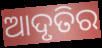
ଆଦୃତିର